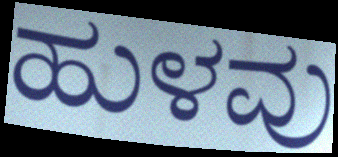
ಹುಳವು